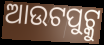
ଆଉଟପୁଟ୍କୁ